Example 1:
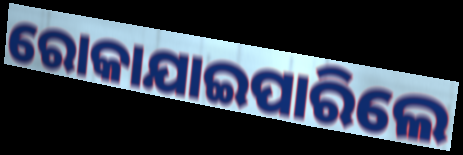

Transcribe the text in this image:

ରୋକାଯାଇପାରିଲେ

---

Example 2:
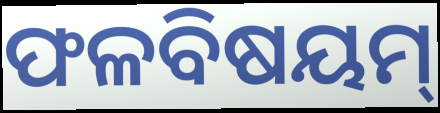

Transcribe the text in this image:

ଫଳବିଷୟମ୍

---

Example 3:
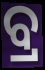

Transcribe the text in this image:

ବ୍ର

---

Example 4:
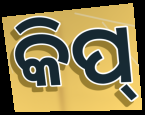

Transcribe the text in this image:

କିପ୍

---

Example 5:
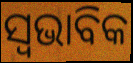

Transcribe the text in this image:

ସ୍ଵଭାବିକ